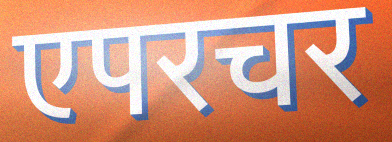
एपरचर